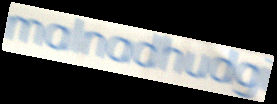
malnadhudgi